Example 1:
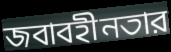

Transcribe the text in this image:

জবাবহীনতার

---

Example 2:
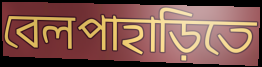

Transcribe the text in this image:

বেলপাহাড়িতে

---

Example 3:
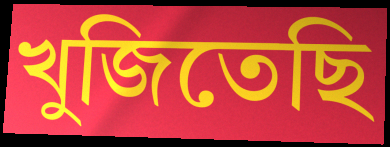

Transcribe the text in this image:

খুজিতেছি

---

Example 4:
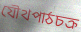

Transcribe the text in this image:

যৌথপাঠচক্র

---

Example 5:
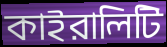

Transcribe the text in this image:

কাইরালিটি